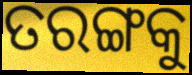
ତରଙ୍ଗକୁ